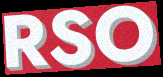
RSO